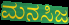
ಮನಸಿಜ